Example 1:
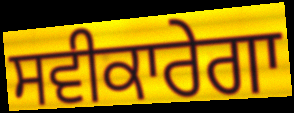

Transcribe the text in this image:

ਸਵੀਕਾਰੇਗਾ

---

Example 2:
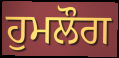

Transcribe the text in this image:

ਹੁਮਲੌਗ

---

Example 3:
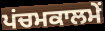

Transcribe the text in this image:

ਪਂਚਮਕਾਲਮੇਂ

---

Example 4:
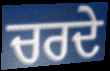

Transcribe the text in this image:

ਚਰਦੇ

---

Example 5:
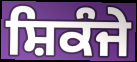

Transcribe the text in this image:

ਸ਼ਿਕੰਜੇ